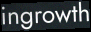
ingrowth